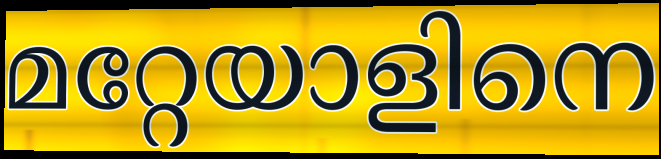
മറ്റേയാളിനെ